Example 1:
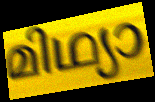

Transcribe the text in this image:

മിഥ്യാ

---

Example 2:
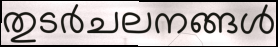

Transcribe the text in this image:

തുടർചലനങ്ങൾ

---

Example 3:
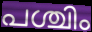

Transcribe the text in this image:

പശ്ചിം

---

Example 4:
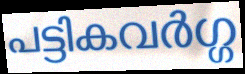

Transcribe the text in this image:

പട്ടികവർഗ്ഗ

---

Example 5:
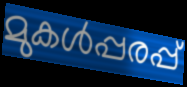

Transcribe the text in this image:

മുകൾപ്പരപ്പ്